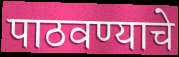
पाठवण्याचे